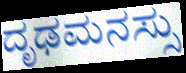
ದೃಢಮನಸ್ಸು